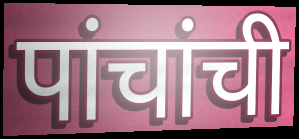
पांचांची